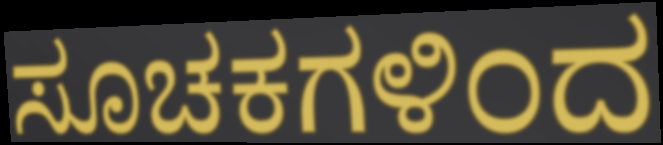
ಸೂಚಕಗಳಿಂದ